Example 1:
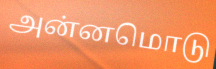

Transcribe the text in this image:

அன்னமொடு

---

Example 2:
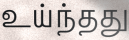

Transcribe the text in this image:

உய்ந்தது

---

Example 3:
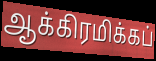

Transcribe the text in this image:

ஆக்கிரமிக்கப்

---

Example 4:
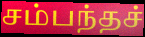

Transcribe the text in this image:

சம்பந்தச்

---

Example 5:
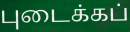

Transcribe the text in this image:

புடைக்கப்